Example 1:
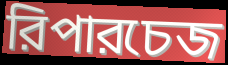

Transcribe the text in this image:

রিপারচেজ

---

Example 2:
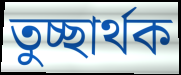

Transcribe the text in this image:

তুচ্ছার্থক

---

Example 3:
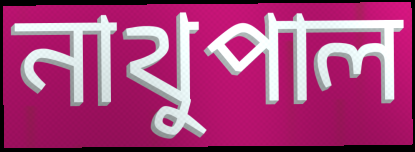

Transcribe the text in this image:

নাথুপাল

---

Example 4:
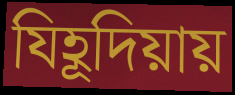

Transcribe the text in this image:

যিহূদিয়ায়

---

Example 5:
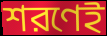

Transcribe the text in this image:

শরণেই